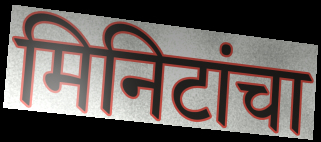
मिनिटांचा